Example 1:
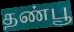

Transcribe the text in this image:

தண்பூ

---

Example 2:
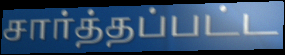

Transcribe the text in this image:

சார்த்தப்பட்ட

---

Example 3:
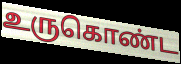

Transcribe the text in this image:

உருகொண்ட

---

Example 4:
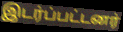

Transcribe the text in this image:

இடர்ப்பட்டனர்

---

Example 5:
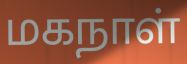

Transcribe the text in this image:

மகநாள்